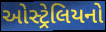
ઓસ્ટ્રેલિયનો